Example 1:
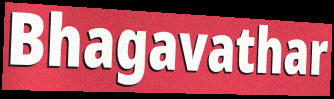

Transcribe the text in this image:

Bhagavathar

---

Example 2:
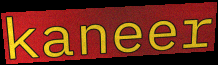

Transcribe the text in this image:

kaneer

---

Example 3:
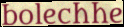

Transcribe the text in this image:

bolechhe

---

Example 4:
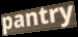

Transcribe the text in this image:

pantry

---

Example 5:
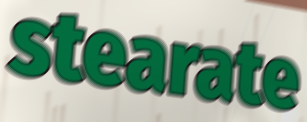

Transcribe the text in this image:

stearate